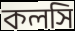
কলসি